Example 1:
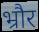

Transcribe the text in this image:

भ्रौर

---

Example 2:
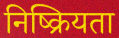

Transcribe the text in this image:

निष्क्रियता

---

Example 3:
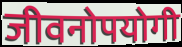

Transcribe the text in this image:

जीवनोपयोगी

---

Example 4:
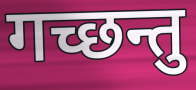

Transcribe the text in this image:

गच्छन्तु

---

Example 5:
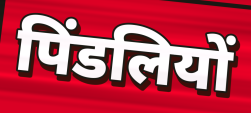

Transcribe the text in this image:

पिंडलियों